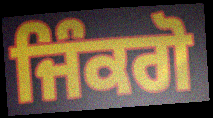
ਜਿੰਕਗੋ